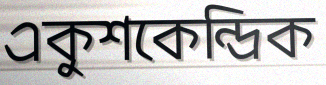
একুশকেন্দ্রিক